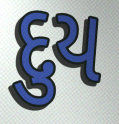
દુય